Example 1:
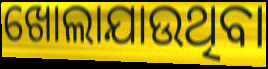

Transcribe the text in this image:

ଖୋଲାଯାଉଥିବା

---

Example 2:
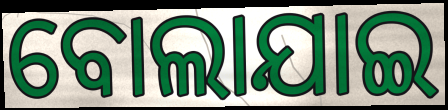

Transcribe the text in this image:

ବୋଲାଯାଇ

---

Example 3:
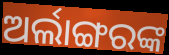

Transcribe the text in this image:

ଅର୍ଲାଙ୍ଗରଙ୍କ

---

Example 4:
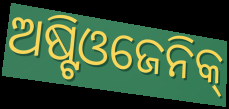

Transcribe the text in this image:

ଅଷ୍ଟିଓଜେନିକ୍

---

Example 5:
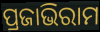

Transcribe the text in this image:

ପ୍ରଜାଭିରାମ